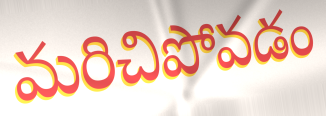
మరిచిపోవడం